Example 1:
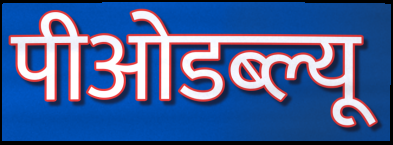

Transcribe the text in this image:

पीओडब्ल्यू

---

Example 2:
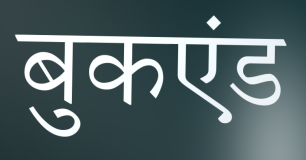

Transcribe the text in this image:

बुकएंड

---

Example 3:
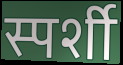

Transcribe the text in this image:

स्पर्शी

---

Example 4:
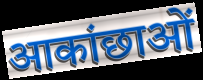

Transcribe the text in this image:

आकांछाओं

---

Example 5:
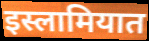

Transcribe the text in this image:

इस्लामियात